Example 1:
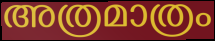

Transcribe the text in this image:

അത്രമാത്രം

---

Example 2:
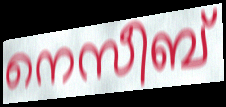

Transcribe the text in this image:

നെസീബ്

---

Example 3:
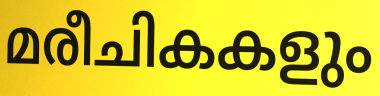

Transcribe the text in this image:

മരീചികകളും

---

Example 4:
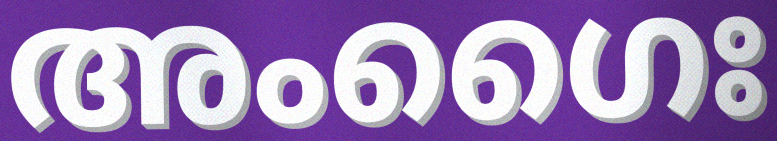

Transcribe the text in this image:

അംഗൈഃ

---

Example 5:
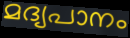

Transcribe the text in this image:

മദ്യപാനം